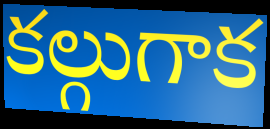
కల్గుగాక